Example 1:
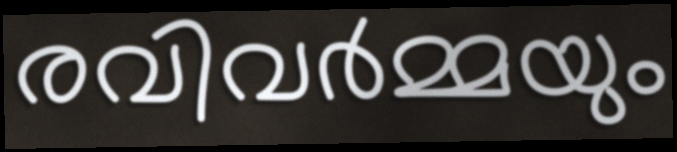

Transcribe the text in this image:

രവിവർമ്മയും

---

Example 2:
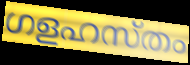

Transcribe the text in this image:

ഗളഹസ്തം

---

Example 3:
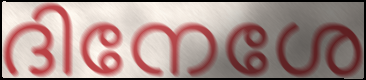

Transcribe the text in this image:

ദിനേശേ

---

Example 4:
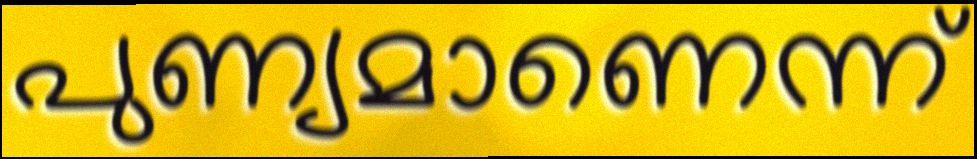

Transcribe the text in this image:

പുണ്യമാണെന്ന്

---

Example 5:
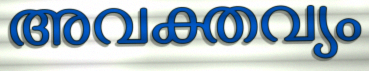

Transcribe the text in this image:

അവക്തവ്യം